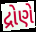
દ્રોણે